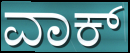
ವಾಕ್